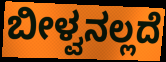
ಬೀಳ್ವನಲ್ಲದೆ